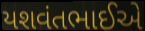
યશવંતભાઈએ